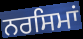
ਨਰਸਿਮਾਂ